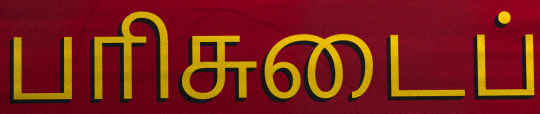
பரிசுடைப்